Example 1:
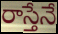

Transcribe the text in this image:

రాస్తేనే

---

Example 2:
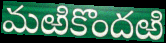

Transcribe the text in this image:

మఱికొందఱి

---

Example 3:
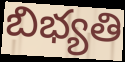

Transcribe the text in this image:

బిభ్యతి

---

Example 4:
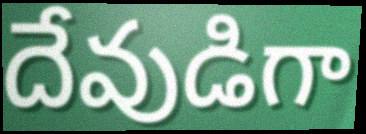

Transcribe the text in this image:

దేవుడిగా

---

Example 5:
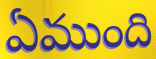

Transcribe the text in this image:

ఏముంది